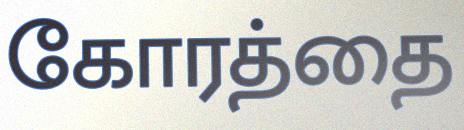
கோரத்தை